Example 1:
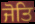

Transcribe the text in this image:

ਜੋਤਿ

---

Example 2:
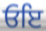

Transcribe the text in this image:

ਓਇ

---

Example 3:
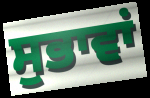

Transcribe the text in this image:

ਸੁਭਾਵਾਂ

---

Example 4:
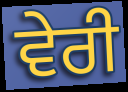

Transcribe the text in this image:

ਵੇਰੀ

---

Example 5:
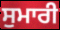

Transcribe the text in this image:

ਸੁਮਾਰੀ